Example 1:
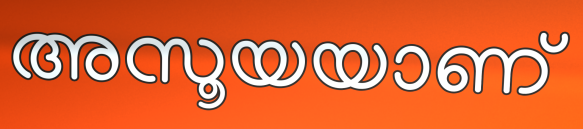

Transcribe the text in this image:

അസൂയയാണ്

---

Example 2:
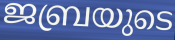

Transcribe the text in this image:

ജബ്രയുടെ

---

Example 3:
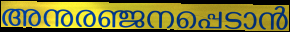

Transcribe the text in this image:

അനുരഞ്ജനപ്പെടാൻ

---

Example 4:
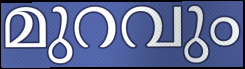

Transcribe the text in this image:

മുറവും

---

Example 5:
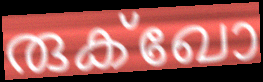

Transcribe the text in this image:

രുക്ഖോ